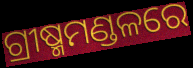
ଗ୍ରୀଷ୍ମମଣ୍ଡଳରେ